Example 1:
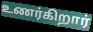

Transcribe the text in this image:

உணர்கிறார்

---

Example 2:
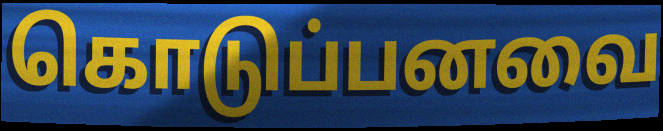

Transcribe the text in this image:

கொடுப்பனவை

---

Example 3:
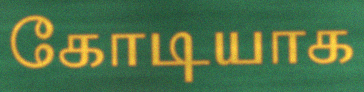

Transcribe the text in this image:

கோடியாக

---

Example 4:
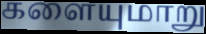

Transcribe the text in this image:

களையுமாறு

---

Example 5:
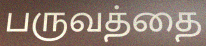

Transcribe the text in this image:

பருவத்தை